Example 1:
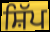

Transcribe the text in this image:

ਸ਼ਿੱਪ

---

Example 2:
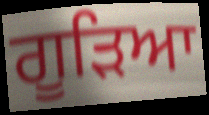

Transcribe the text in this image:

ਗੂੜਿਆ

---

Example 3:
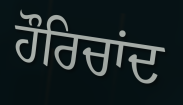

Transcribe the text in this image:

ਹੌਰਿਚਾਂਦ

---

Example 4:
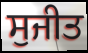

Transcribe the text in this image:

ਸੁਜੀਤ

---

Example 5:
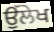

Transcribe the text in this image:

ਉੱਲੇਖ